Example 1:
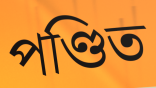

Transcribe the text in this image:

পণ্ডিত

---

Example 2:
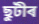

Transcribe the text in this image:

ছুটীৰ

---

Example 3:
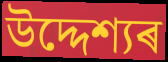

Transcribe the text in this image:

উদ্দেশ্যৰ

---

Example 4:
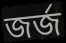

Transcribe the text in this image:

জৰ্জ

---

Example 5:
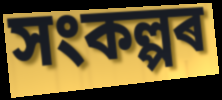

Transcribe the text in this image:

সংকল্পৰ